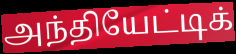
அந்தியேட்டிக்